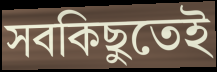
সবকিছুতেই